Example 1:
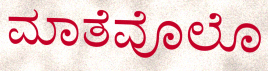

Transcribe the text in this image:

ಮಾತೆವೊಲೊ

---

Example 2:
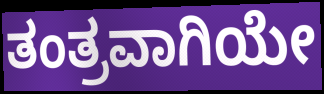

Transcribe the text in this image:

ತಂತ್ರವಾಗಿಯೇ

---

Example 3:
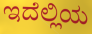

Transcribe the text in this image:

ಇದೆಲ್ಲಿಯ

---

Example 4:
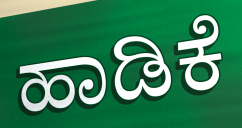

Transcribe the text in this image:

ಹಾಡಿಕೆ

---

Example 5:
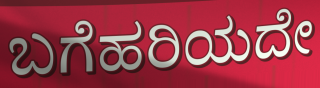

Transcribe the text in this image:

ಬಗೆಹರಿಯದೇ